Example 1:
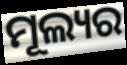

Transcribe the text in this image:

ମୂଲ୍ୟର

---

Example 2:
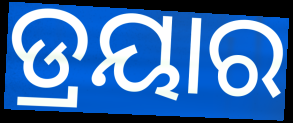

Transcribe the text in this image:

ଡ୍ରୟାର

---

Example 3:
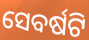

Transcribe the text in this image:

ସେବର୍ଷଟି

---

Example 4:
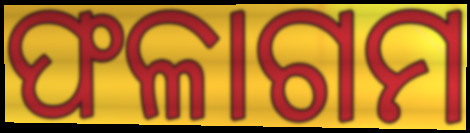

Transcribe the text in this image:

ଫଳାଗମ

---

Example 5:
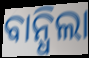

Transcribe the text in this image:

ବାନ୍ଧିଲା